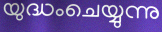
യുദ്ധംചെയ്യുന്നു